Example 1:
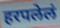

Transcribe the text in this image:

हरपलेलं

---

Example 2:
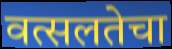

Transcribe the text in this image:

वत्सलतेचा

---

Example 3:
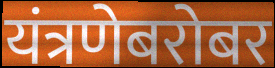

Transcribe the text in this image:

यंत्रणेबरोबर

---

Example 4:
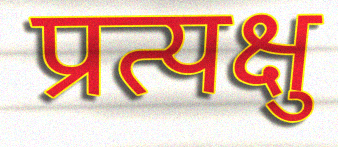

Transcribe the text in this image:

प्रत्यक्षु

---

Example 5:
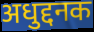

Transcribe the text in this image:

अधुद्दनक